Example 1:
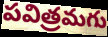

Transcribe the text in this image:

పవిత్రమగు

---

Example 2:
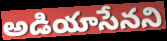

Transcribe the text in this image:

అడియాసేనని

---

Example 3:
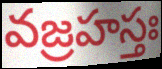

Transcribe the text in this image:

వజ్రహస్తః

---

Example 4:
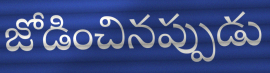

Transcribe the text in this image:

జోడించినప్పుడు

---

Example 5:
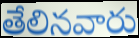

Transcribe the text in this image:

తేలినవారు